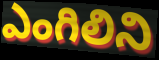
ఎంగిలిని